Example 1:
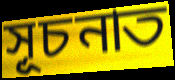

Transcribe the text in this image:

সূচনাত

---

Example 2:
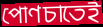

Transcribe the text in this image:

পোণচাতেই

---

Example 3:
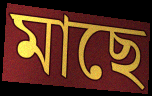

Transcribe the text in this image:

মাছে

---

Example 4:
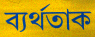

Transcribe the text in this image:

ব্যৰ্থতাক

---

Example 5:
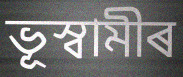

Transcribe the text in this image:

ভূস্বামীৰ